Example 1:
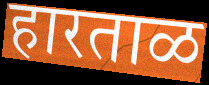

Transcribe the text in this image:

हारताळ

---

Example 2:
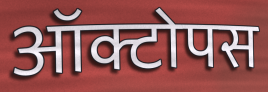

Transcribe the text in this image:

ऑक्टोपस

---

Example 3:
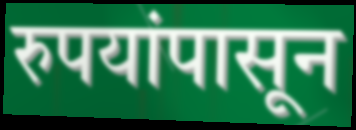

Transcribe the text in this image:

रुपयांपासून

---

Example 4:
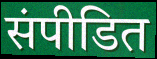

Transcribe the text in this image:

संपीडित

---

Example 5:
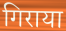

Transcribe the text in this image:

गिराया